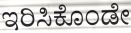
ಇರಿಸಿಕೊಂಡೇ